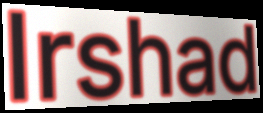
Irshad